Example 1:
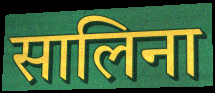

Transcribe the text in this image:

सालिना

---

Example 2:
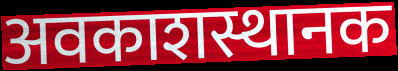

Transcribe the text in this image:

अवकाशस्थानक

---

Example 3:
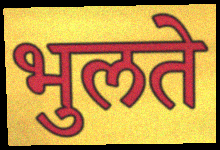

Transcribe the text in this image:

भुलते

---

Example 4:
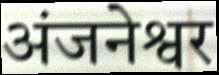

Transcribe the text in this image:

अंजनेश्वर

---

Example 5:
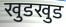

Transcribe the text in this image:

खुडखुड